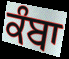
ਕੰਬਾ